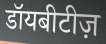
डॉयबीटीज़